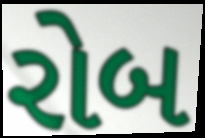
રોબ